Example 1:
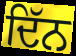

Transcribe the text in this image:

ਦਿੱਨ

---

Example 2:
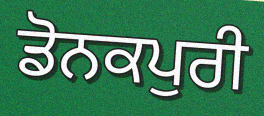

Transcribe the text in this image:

ਡੋਨਕਪੁਰੀ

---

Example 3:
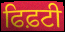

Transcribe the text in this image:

ਫਿਫ਼ਟੀ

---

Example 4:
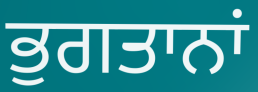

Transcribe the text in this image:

ਭੁਗਤਾਨਾਂ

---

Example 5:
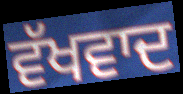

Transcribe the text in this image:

ਵੱਖਵਾਦ